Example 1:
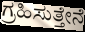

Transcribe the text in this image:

ಗ್ರಹಿಸುತ್ತೇನೆ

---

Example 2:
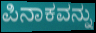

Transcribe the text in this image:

ಪಿನಾಕವನ್ನು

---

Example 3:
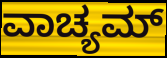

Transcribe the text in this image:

ವಾಚ್ಯಮ್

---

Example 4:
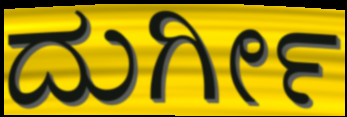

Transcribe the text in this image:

ದುರ್ಗೀ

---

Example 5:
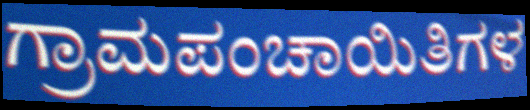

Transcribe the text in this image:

ಗ್ರಾಮಪಂಚಾಯಿತಿಗಳ